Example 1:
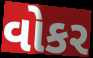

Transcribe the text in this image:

વોકર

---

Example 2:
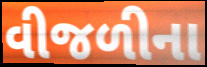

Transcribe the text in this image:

વીજળીના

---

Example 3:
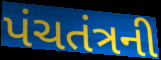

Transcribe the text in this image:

પંચતંત્રની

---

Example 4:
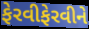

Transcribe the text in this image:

ફેરવીફેરવીને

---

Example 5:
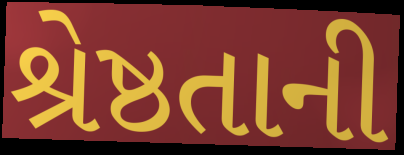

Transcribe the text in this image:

શ્રેષ્ઠતાની